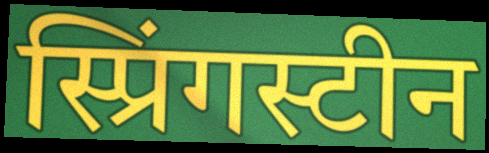
स्प्रिंगस्टीन